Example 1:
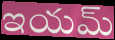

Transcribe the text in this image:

ఇయమ్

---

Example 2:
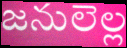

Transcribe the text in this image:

జనులెల్ల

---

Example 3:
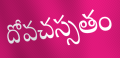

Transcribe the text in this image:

దోవచస్సతం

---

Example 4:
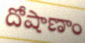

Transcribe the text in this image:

దోషాణాం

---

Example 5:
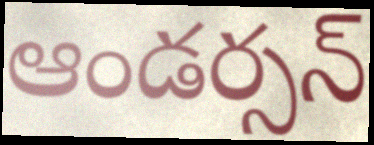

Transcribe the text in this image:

ఆండర్సన్